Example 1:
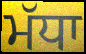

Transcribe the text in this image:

ਮੱਧਾ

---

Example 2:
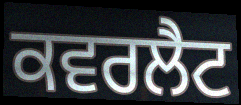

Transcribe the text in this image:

ਕਵਰਲੈਟ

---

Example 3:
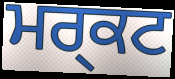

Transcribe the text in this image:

ਮਰ੍ਕਟ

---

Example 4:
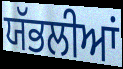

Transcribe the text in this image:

ਯੱਭਲੀਆਂ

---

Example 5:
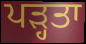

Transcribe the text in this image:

ਪੜ੍ਹਤਾ